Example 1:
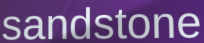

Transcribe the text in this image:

sandstone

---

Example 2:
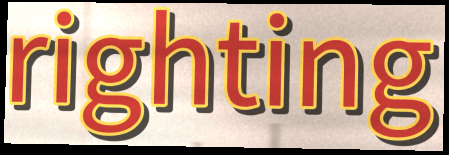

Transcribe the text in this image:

righting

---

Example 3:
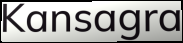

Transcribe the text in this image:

Kansagra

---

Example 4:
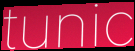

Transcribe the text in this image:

tunic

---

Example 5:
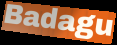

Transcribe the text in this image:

Badagu